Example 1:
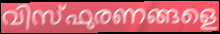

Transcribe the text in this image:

വിസ്ഫുരണങ്ങളെ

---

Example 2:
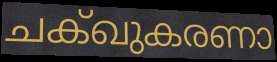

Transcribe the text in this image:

ചക്ഖുകരണാ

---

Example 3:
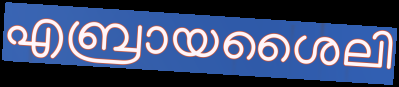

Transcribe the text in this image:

എബ്രായശൈലി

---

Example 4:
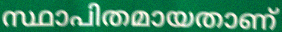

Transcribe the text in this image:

സ്ഥാപിതമായതാണ്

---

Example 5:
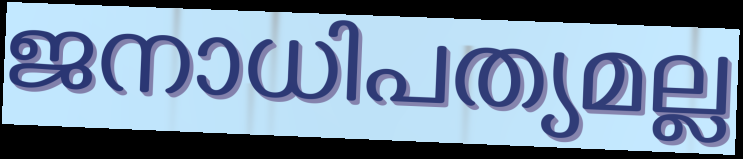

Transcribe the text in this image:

ജനാധിപത്യമല്ല